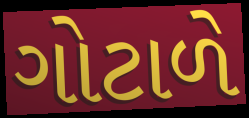
ગોટાળે